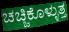
ಚಚ್ಚಿಕೊಳ್ಳುತ್ತ